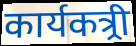
कार्यकत्र्री